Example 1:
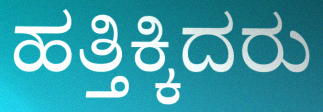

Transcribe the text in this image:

ಹತ್ತಿಕ್ಕಿದರು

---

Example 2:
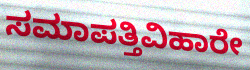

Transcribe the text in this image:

ಸಮಾಪತ್ತಿವಿಹಾರೇ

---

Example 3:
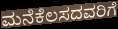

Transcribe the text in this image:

ಮನೆಕೆಲಸದವರಿಗೆ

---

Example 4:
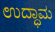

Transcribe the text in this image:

ಉದ್ಧಾಮ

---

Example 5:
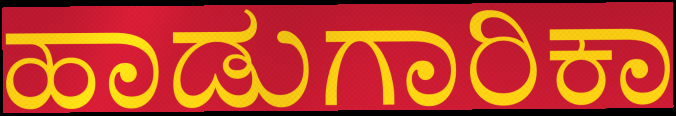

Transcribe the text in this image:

ಹಾಡುಗಾರಿಕಾ